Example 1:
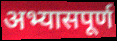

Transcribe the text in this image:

अभ्यासपूर्ण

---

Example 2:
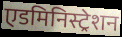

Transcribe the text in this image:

एडमिनिस्ट्रेशन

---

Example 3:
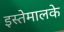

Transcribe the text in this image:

इस्तेमालके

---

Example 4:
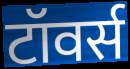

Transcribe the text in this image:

टॉवर्स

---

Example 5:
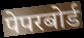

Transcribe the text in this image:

पेपरबोर्ड